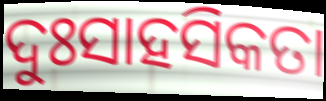
ଦୁଃସାହସିକତା